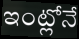
ఇంట్లోనే